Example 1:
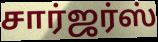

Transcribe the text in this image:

சார்ஜர்ஸ்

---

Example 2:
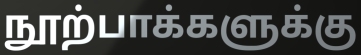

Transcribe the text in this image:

நூற்பாக்களுக்கு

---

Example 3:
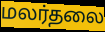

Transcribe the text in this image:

மலர்தலை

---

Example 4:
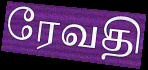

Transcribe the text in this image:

ரேவதி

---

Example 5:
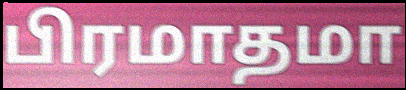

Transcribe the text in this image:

பிரமாதமா